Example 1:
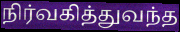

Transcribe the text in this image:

நிர்வகித்துவந்த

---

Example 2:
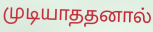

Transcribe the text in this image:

முடியாததனால்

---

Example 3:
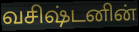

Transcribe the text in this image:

வசிஷ்டனின்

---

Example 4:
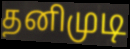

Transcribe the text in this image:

தனிமுடி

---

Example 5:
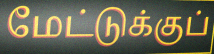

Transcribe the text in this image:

மேட்டுக்குப்